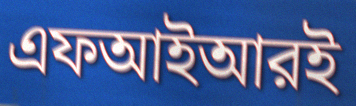
এফআইআরই